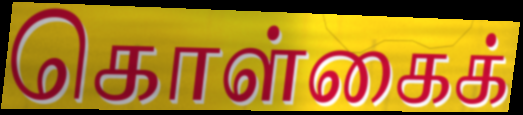
கொள்கைக்